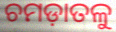
ଚମଡ଼ାତଳୁ